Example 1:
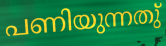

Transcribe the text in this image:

പണിയുന്നതു്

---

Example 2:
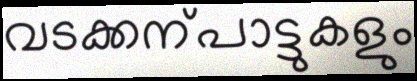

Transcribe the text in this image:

വടക്കന്പാട്ടുകളും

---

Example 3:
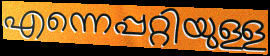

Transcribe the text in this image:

എന്നെപ്പറ്റിയുള്ള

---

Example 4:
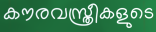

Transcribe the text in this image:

കൗരവസ്ത്രീകളുടെ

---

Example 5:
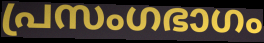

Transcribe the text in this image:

പ്രസംഗഭാഗം